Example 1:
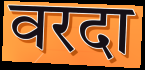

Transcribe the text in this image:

वरदा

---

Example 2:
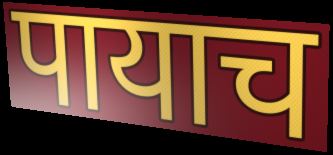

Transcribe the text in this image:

पायाच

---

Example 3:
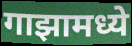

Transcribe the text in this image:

गाझामध्ये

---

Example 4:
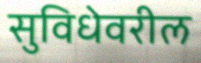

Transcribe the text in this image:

सुविधेवरील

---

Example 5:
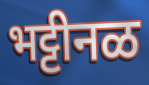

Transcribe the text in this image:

भट्टीनळ